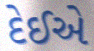
દેઈએ